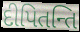
દીપિતન્તિ